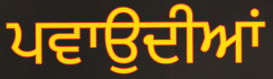
ਪਵਾਉਦੀਆਂ